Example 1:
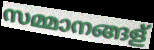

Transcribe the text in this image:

സമ്മാനങ്ങള്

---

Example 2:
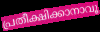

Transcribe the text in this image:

പ്രതീക്ഷിക്കാനാവൂ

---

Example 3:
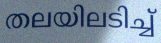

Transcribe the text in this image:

തലയിലടിച്ച്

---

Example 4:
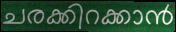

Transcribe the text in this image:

ചരക്കിറക്കാൻ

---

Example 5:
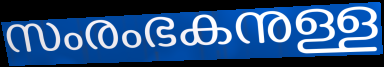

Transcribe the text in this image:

സംരംഭകനുള്ള